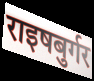
राइषबुर्गर